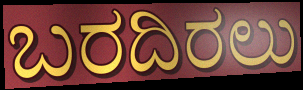
ಬರದಿರಲು